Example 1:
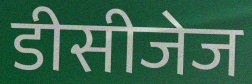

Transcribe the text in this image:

डीसीजेज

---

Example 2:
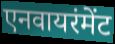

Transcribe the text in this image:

एनवायरंमेंट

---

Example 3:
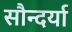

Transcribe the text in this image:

सौन्दर्या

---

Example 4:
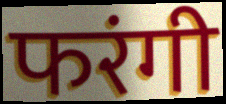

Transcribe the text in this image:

फरंगी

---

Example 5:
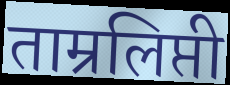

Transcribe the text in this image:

ताम्रलिप्ती